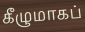
கீழுமாகப்